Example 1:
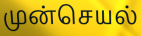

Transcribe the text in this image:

முன்செயல்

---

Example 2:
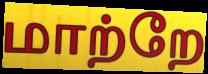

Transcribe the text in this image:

மாற்றே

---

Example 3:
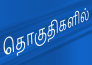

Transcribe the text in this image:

தொகுதிகளில்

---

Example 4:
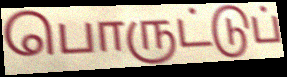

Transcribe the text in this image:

பொருட்டுப்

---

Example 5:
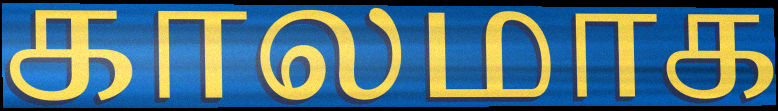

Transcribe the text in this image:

காலமாக